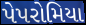
પેપરોમિયા